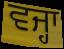
ਵਜ੍ਹਾ